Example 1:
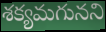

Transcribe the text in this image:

శక్యమగునని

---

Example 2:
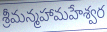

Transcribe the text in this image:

శ్రీమన్మహామహేశ్వర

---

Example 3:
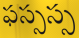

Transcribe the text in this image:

ఫస్సస్స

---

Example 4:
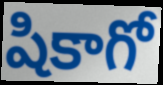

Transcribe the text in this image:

షికాగో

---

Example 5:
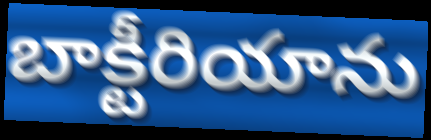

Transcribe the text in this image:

బాక్టీరియాను